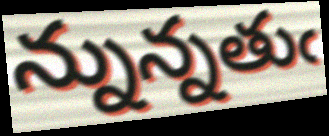
న్నున్నతుఁ